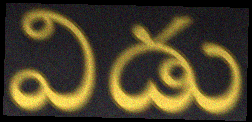
విడు